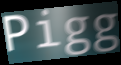
Pigg